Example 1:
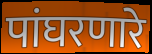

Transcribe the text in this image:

पांघरणारे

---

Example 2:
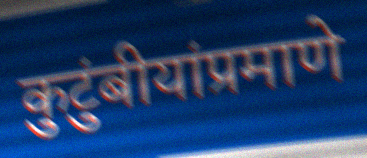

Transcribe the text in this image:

कुटुंबीयांप्रमाणे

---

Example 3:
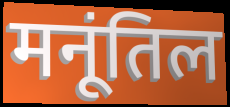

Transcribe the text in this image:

मनूंतिल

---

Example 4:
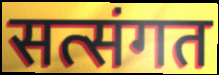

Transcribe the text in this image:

सत्संगत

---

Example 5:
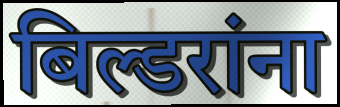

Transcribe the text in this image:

बिल्डरांना